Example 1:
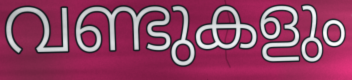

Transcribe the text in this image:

വണ്ടുകളും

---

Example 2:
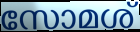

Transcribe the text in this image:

സോമശ്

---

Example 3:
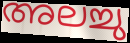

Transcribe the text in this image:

അലച്ചു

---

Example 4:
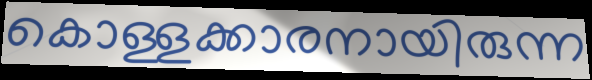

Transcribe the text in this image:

കൊള്ളക്കാരനായിരുന്ന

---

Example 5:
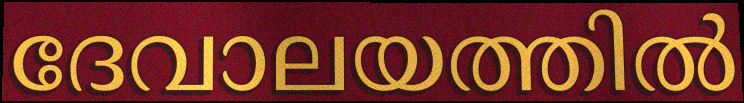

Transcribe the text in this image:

ദേവാലയത്തിൽ